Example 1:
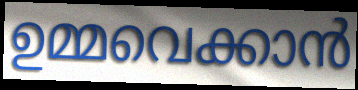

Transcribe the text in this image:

ഉമ്മവെക്കാൻ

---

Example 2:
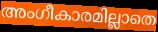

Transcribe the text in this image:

അംഗീകാരമില്ലാതെ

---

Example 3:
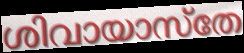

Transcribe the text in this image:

ശിവായാസ്തേ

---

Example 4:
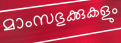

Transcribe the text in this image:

മാംസഭുക്കുകളും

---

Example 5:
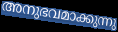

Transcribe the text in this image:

അനുഭവമാക്കുന്നു